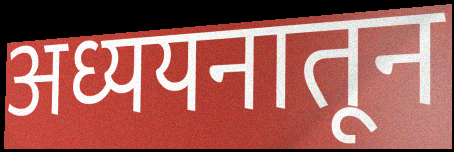
अध्ययनातून